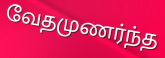
வேதமுணர்ந்த